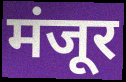
मंजूर